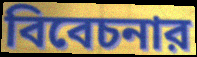
বিবেচনার